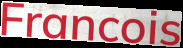
Francois